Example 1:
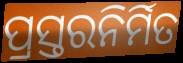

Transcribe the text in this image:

ପ୍ରସ୍ତରନିର୍ମିତ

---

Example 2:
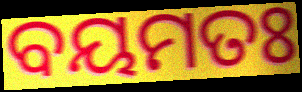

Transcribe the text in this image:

ବୟମତଃ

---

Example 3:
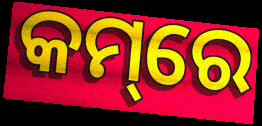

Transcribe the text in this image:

କମ୍‌ରେ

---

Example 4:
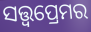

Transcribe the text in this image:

ସତ୍ତ୍ୱପ୍ରେମର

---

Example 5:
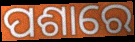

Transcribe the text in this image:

ପଶାରେ